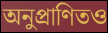
অনুপ্রাণিতও